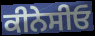
ਕੀਨੇਸੀਓ